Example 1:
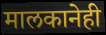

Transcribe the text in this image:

मालकानेही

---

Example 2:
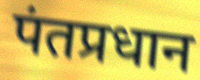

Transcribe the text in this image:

पंतप्रधान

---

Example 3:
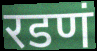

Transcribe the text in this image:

रडणं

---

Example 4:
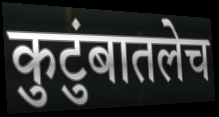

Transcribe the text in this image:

कुटुंबातलेच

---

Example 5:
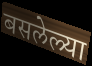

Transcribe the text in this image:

बसलेल्या